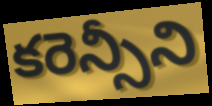
కరెన్సీని